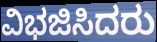
ವಿಭಜಿಸಿದರು